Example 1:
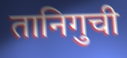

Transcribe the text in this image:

तानिगुची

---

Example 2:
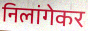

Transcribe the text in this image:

निलांगेकर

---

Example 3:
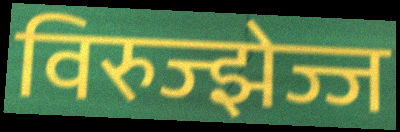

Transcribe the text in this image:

विरुज्झेज्ज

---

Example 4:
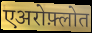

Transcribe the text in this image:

एअरोफ़्लोत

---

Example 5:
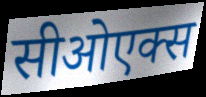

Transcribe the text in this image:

सीओएक्स